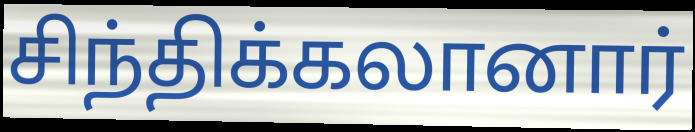
சிந்திக்கலானார்